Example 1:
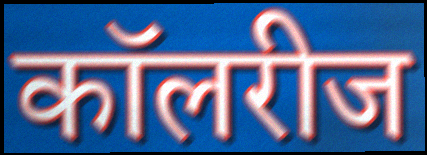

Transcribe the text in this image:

कॉलरीज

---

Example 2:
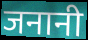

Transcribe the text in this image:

जनानी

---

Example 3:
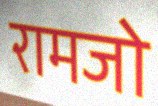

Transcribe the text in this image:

रामजो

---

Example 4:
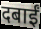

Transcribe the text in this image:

दबाईं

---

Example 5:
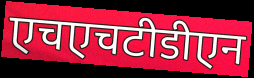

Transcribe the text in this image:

एचएचटीडीएन